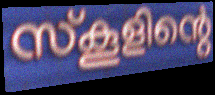
സ്കൂളിന്റെ